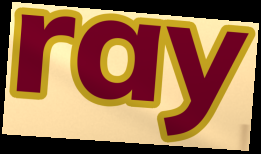
ray